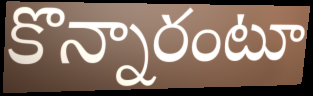
కొన్నారంటూ